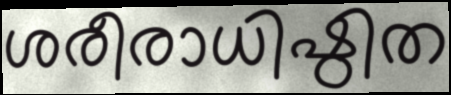
ശരീരാധിഷ്ഠിത